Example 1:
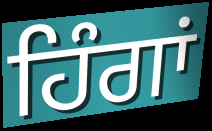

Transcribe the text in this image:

ਹਿੰਗਾਂ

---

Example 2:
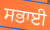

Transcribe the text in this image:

ਸਭਾਈ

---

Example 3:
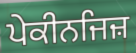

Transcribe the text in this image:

ਪੇਕੀਨਜਿਜ਼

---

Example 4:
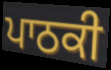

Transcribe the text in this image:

ਪਾਠਕੀ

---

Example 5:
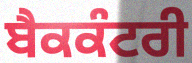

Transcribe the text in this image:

ਬੈਕਕੰਟਰੀ